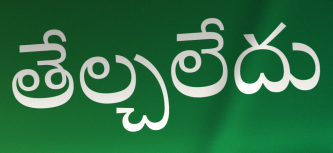
తేల్చలేదు